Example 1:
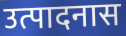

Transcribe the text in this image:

उत्पादनास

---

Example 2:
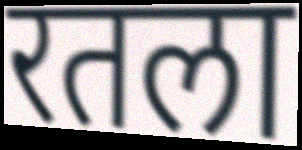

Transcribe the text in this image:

रतला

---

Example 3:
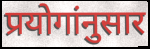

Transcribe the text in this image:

प्रयोगांनुसार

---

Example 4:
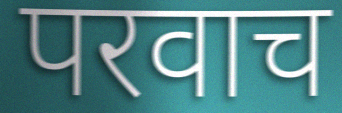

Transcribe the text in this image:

परवाच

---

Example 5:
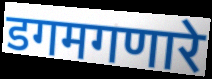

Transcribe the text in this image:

डगमगणारे